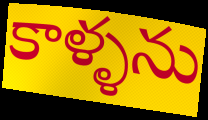
కాళ్ళను